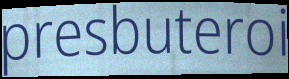
presbuteroi